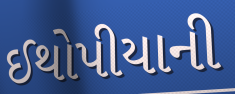
ઈથોપીયાની